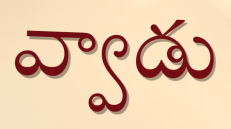
వ్వాడు